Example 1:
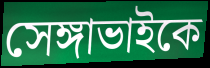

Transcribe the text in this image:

সেঙ্গাভাইকে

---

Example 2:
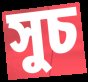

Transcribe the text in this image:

সুচ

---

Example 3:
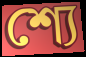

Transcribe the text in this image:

শ্যে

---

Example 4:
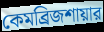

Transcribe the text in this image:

কেমব্রিজশায়ার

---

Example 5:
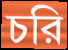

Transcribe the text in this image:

চরি